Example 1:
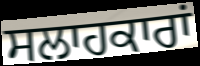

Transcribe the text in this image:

ਸਲਾਹਕਾਰਾਂ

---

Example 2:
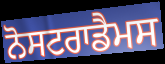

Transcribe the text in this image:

ਨੋਸਟਰਾਡੈਮਸ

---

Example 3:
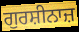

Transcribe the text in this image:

ਗੁਰਸ਼ੀਨਾਜ਼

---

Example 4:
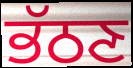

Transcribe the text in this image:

ਭੱਠਣ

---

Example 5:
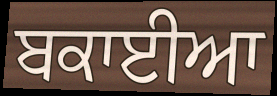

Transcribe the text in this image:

ਬਕਾਈਆ